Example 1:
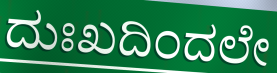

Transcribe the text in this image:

ದುಃಖದಿಂದಲೇ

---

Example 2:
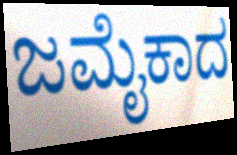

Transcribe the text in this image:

ಜಮೈಕಾದ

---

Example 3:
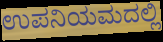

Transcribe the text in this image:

ಉಪನಿಯಮದಲ್ಲಿ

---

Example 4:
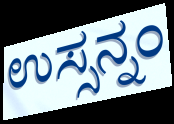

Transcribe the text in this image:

ಉಸ್ಸನ್ನಂ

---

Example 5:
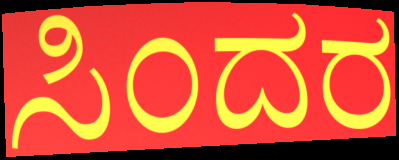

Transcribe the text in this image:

ಸಿಂದರ